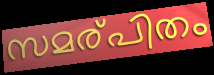
സമര്പിതം